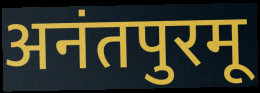
अनंतपुरमू